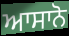
ਆਸਾਨੋ